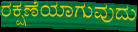
ರಕ್ಷಣೆಯಾಗುವುದು